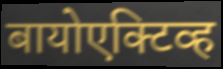
बायोएक्टिव्ह